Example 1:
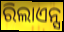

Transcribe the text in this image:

ରିଲାଏନ୍ସ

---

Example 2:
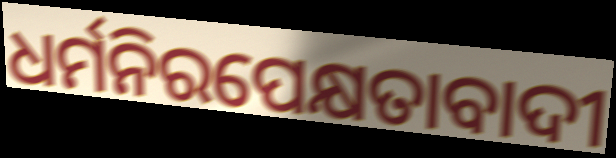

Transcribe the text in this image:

ଧର୍ମନିରପେକ୍ଷତାବାଦୀ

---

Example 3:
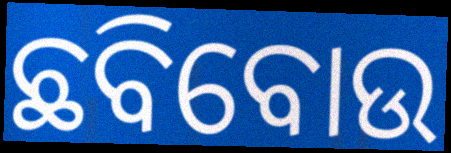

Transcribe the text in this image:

ଛବିବୋଉ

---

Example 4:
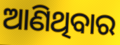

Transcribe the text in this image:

ଆଣିଥିବାର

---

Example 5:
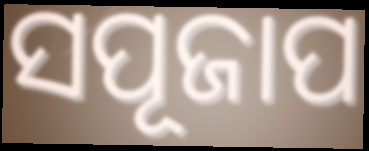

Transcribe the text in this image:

ସପୂଜାପ